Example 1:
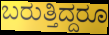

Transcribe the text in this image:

ಬರುತ್ತಿದ್ದರೂ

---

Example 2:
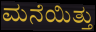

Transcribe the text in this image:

ಮನೆಯಿತ್ತು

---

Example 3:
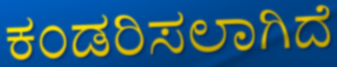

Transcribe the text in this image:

ಕಂಡರಿಸಲಾಗಿದೆ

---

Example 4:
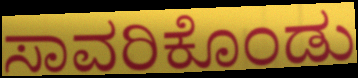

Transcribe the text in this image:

ಸಾವರಿಕೊಂಡು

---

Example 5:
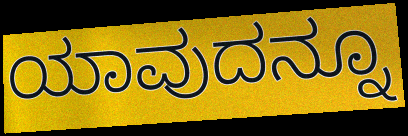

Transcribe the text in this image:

ಯಾವುದನ್ನೂ